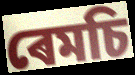
ৰেমচি